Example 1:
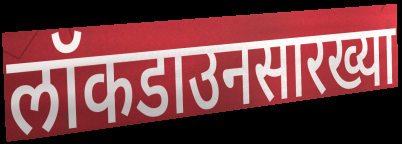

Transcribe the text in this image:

लॉकडाउनसारख्या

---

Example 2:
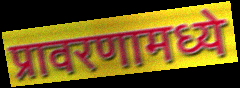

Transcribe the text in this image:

प्रावरणामध्ये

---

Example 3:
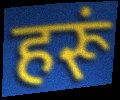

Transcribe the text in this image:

हरूं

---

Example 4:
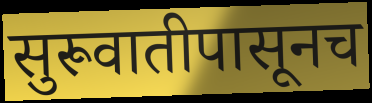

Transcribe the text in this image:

सुरूवातीपासूनच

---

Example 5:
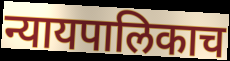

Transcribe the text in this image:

न्यायपालिकाच